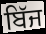
ਬਿੱਜ